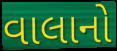
વાલાનો